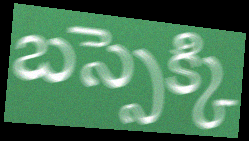
బస్సెక్కి